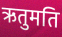
ऋतुमति